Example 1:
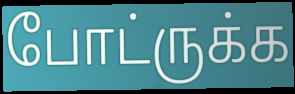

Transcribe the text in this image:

போட்ருக்க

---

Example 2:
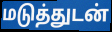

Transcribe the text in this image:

மடுத்துடன்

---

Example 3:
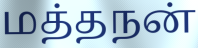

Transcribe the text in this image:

மத்தநன்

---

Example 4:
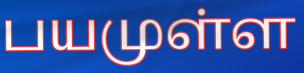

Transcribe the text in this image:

பயமுள்ள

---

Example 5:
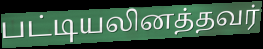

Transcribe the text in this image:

பட்டியலினத்தவர்